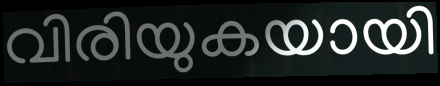
വിരിയുകയായി